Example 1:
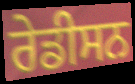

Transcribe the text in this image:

ਰੇਡੀਸਨ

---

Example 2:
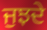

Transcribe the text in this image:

ਜੁਝਦੇ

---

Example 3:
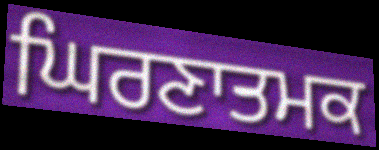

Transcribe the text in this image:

ਘਿਰਣਾਤਮਕ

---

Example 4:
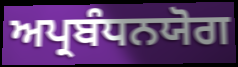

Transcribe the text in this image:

ਅਪ੍ਰਬੰਧਨਯੋਗ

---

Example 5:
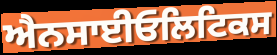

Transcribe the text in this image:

ਐਨਸਾਈਓਲਿਟਿਕਸ